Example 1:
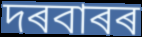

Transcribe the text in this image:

দৰবাৰৰ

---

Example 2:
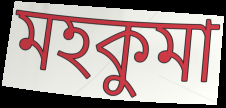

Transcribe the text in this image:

মহকুমা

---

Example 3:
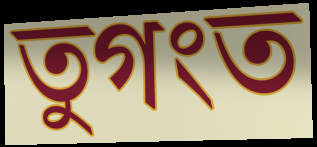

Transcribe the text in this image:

তুগংত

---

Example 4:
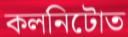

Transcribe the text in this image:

কলনিটোত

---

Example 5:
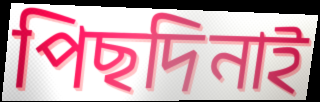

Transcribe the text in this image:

পিছদিনাই